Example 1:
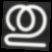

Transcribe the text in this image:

തു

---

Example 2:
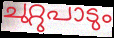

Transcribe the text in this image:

ചുറ്റുപാടും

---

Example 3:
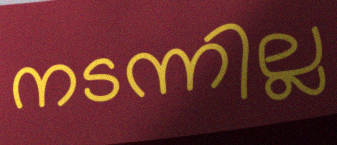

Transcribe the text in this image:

നടന്നില്ല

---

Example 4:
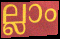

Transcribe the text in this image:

ല്ലാം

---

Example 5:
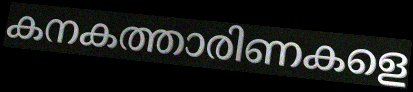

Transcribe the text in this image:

കനകത്താരിണകളെ